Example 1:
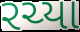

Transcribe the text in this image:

રચ્યા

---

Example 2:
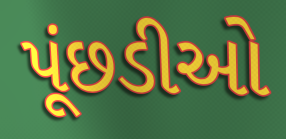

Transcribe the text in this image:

પૂંછડીઓ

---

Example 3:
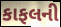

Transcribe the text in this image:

કાફલની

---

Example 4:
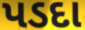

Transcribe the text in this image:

પડદા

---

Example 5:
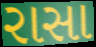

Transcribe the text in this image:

રાસા